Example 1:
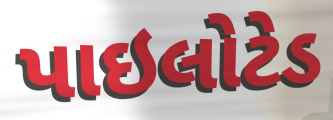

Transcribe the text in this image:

પાઇલોટેડ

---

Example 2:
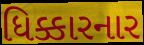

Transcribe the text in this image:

ધિક્કારનાર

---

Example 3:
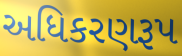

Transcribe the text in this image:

અધિકરણરૂપ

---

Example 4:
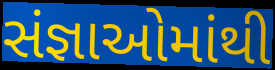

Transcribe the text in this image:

સંજ્ઞાઓમાંથી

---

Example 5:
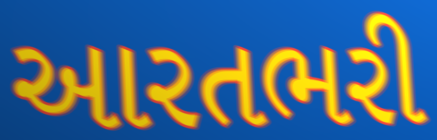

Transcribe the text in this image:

આરતભરી